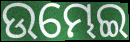
ଉମ୍ଭେଇ